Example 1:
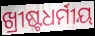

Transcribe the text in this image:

ଖ୍ରୀଷ୍ଟଧର୍ମୀୟ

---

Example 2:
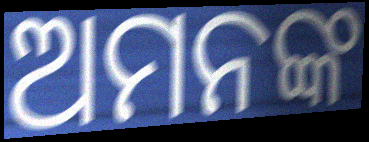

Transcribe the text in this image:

ଅମନଙ୍କ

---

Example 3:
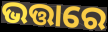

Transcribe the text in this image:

ଭତ୍ତାରେ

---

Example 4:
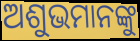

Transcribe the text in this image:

ଅଶୁଭମାନଙ୍କୁ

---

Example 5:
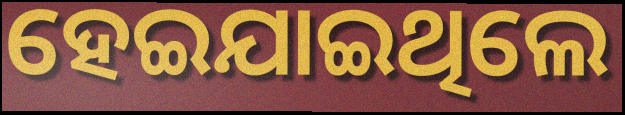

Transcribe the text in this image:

ହେଇଯାଇଥିଲେ